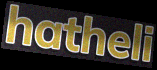
hatheli